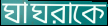
ঘাঘরাকে